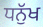
ਧਨੁੱਖ